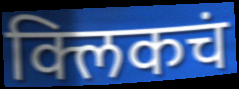
क्लिकचं